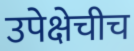
उपेक्षेचीच